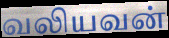
வலியவன்